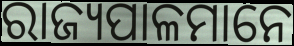
ରାଜ୍ୟପାଳମାନେ